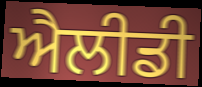
ਐਲੀਡੀ